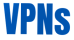
VPNs